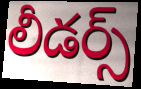
లీడర్స్